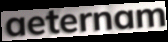
aeternam